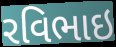
રવિભાઇ